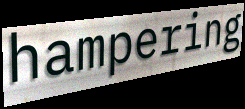
hampering